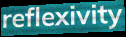
reflexivity